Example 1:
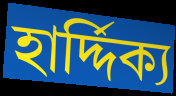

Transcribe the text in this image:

হার্দ্দিক্য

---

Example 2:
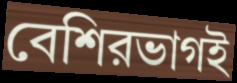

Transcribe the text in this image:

বেশিরভাগই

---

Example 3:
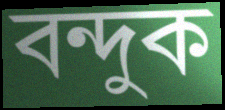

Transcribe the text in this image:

বন্দুক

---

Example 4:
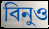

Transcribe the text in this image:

বিনুও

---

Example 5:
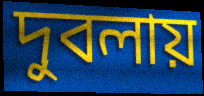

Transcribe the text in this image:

দুবলায়